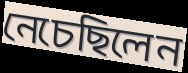
নেচেছিলেন